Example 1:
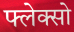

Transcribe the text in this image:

फ्लेक्सो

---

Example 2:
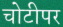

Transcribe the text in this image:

चोटीपर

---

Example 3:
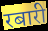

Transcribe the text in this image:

रबारी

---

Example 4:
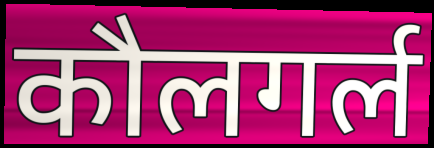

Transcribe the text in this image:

कौलगर्ल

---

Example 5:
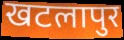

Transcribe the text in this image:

खटलापुर